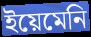
ইয়েমেনি